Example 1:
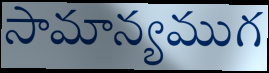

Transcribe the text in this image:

సామాన్యముగ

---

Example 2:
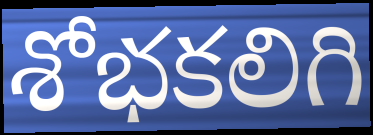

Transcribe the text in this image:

శోభకలిగి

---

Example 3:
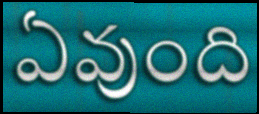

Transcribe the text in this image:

ఏవుంది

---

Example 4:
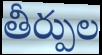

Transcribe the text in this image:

తీర్పుల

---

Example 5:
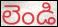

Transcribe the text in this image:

లెండి